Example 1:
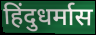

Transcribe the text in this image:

हिंदुधर्मास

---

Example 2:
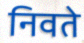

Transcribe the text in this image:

निवते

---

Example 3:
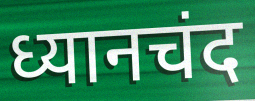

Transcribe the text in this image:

ध्यानचंद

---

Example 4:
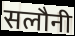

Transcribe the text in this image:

सलौनी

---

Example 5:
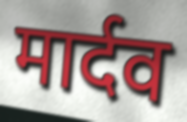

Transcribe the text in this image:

मार्दव